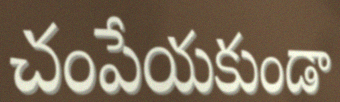
చంపేయకుండా